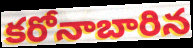
కరోనాబారిన